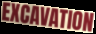
EXCAVATION